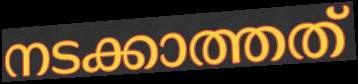
നടക്കാത്തത്